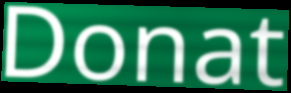
Donat